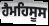
ਹੈਮਹਿਸੂਸ